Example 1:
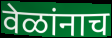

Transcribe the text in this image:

वेळांनाच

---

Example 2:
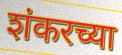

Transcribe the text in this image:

शंकरच्या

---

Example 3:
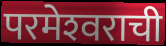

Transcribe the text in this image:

परमेश्‍वराची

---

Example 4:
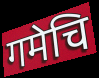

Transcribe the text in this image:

गमेचि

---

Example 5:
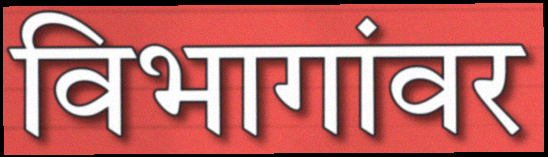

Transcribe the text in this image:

विभागांवर